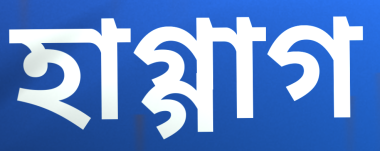
হাগ্গাগ